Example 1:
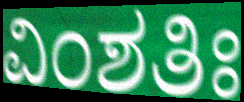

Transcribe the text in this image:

ವಿಂಶತಿಃ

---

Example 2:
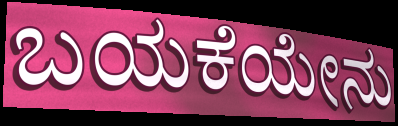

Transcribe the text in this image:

ಬಯಕೆಯೇನು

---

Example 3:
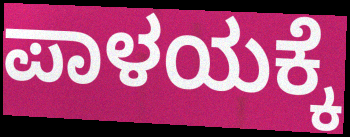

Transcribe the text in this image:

ಪಾಳಯಕ್ಕೆ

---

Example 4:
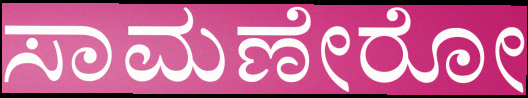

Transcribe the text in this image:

ಸಾಮಣೇರೋ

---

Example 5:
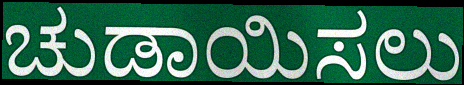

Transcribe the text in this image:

ಚುಡಾಯಿಸಲು